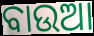
ବାଉଆ